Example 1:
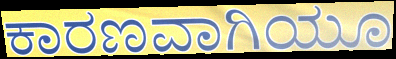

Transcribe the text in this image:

ಕಾರಣವಾಗಿಯೂ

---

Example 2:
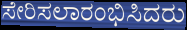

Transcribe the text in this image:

ಸೇರಿಸಲಾರಂಭಿಸಿದರು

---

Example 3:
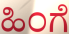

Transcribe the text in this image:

ಹಿಂಗೆ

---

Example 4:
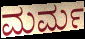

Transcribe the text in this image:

ಮರ್ಮ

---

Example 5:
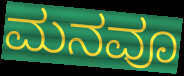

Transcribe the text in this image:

ಮನವೂ